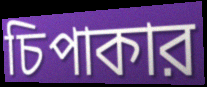
চিপাকার